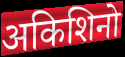
अकिशिनो